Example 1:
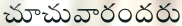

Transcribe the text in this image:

చూచువారందరు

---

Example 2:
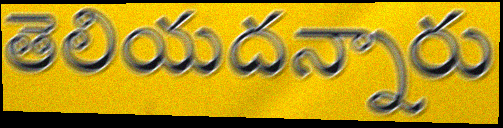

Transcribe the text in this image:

తెలియదన్నారు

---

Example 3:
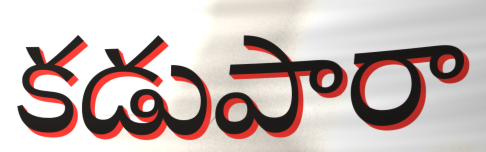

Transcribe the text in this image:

కడుపారా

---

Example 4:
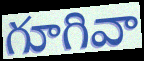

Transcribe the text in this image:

గూగివా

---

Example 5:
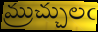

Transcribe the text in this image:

మ్రుచ్చులఁ